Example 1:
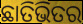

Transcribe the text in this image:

ଛାତିଭିତର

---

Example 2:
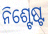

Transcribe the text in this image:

ନିଶ୍ଟେଷ୍ଟ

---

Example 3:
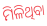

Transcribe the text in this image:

ମିଳିଥିବା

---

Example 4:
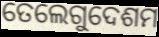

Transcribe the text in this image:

ତେଲେଗୁଦେଶମ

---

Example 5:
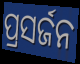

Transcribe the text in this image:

ପ୍ରସର୍ଜନ